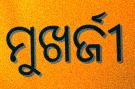
ମୁଖର୍ଜୀ